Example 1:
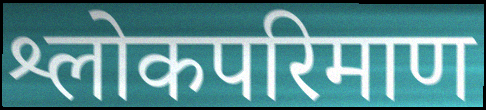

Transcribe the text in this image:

श्लोकपरिमाण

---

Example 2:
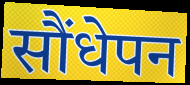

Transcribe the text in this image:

सौंधेपन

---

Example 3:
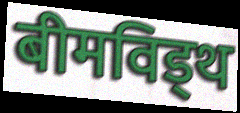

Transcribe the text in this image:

बीमविड्थ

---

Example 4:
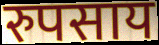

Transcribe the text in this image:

रुपसाय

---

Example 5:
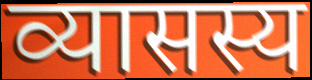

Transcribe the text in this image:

व्यासस्य